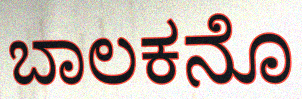
ಬಾಲಕನೊ